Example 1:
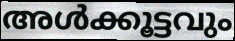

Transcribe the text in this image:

അൾക്കൂട്ടവും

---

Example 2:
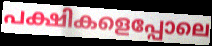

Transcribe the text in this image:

പക്ഷികളെപ്പോലെ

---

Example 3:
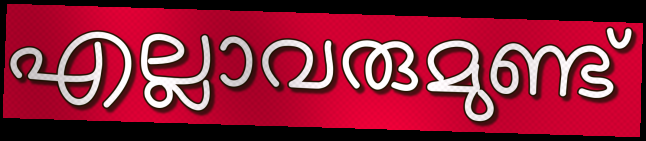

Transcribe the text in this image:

എല്ലാവരുമുണ്ട്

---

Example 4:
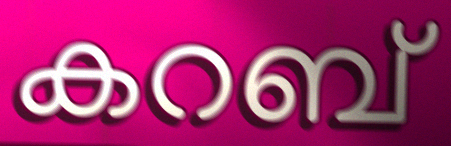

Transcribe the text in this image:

കറബ്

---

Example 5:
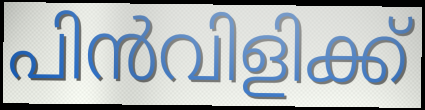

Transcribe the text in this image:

പിൻവിളിക്ക്